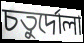
চতুর্দোলা